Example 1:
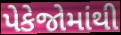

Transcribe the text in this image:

પેકેજોમાંથી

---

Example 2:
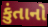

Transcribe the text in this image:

કુંતાનો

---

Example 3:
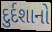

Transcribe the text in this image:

દુર્દશાનો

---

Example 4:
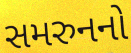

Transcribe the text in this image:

સમરુનનો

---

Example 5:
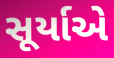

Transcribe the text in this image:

સૂર્યાએ